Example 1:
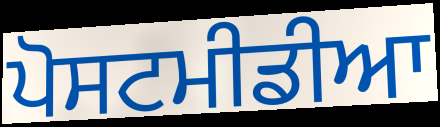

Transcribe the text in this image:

ਪੋਸਟਮੀਡੀਆ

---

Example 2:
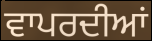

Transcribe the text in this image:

ਵਾਪਰਦੀਆਂ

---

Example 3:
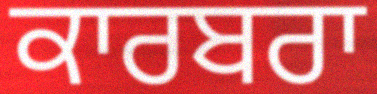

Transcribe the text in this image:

ਕਾਰਬਰਾ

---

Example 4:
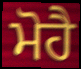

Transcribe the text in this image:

ਮੋਹੈ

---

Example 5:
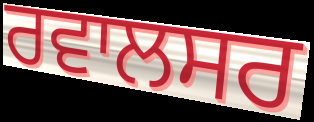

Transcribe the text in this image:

ਰਵਾਲਸਰ